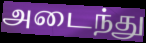
அடைந்து